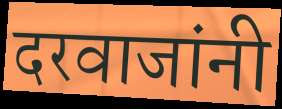
दरवाजांनी